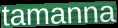
tamanna